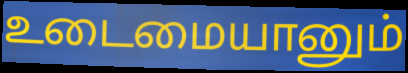
உடைமையானும்